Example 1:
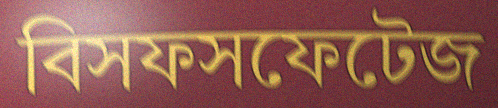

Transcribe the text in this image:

বিসফসফেটেজ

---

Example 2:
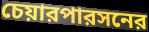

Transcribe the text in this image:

চেয়ারপারসনের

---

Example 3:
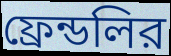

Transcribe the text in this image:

ফ্রেন্ডলির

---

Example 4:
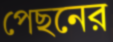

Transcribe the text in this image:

পেছনের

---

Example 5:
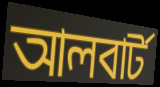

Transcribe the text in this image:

আলবার্ট